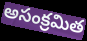
అసంక్రమిత